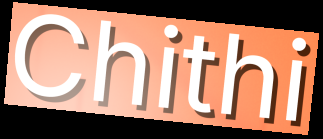
Chithi